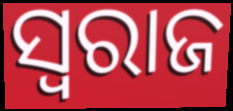
ସ୍ଵରାଜ